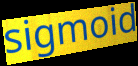
sigmoid